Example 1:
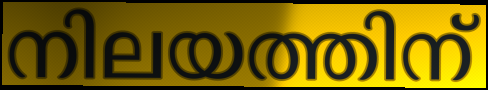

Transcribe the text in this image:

നിലയത്തിന്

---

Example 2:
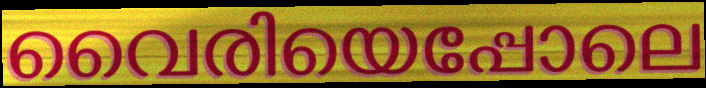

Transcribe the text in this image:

വൈരിയെപ്പോലെ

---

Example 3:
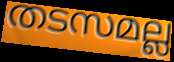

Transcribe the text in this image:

തടസമല്ല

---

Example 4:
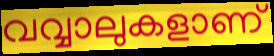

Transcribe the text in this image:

വവ്വാലുകളാണ്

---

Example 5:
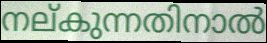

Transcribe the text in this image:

നല്കുന്നതിനാൽ